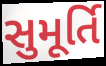
સુમૂર્તિ